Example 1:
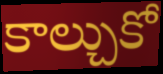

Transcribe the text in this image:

కాల్చుకో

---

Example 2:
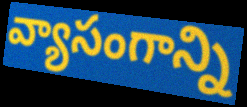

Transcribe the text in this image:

వ్యాసంగాన్ని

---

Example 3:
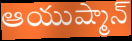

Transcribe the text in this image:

ఆయుష్మాన్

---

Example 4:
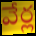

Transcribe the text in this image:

వేర్ల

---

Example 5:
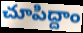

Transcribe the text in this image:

చూపిద్దాం